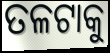
ତଳଟାକୁ